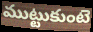
ముట్టుకుంటె